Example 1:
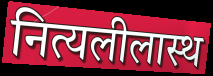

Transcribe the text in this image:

नित्यलीलास्थ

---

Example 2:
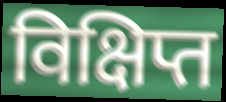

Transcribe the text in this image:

विक्षिप्त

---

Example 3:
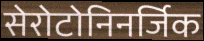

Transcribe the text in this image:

सेरोटोनिनर्जिक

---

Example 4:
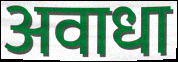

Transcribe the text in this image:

अवाधा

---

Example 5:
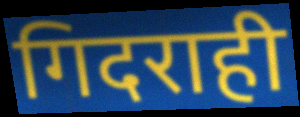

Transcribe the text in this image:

गिदराही